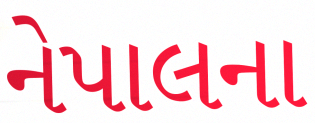
નેપાલના